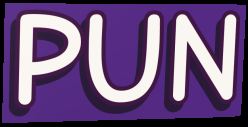
PUN